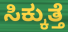
ಸಿಕ್ಕುತ್ತೆ